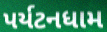
પર્યટનધામ